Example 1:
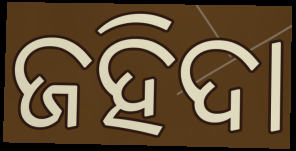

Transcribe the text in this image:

ଜହିଦା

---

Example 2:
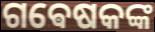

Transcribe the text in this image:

ଗଵେଷକଙ୍କ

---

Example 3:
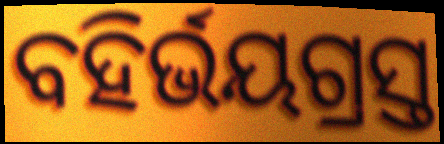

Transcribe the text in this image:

ବହିର୍ଭୟଗ୍ରସ୍ତ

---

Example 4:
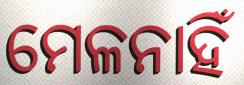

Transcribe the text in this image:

ମେଳନାହିଁ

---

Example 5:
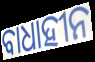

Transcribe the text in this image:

ବାଧାହୀନ